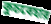
কুচবেহার